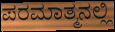
ಪರಮಾತ್ಮನಲ್ಲಿ